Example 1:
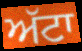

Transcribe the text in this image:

ਅੱਟਾ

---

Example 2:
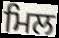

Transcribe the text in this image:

ਮਿਲ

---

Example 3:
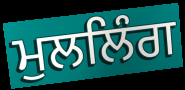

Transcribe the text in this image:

ਮੁਲਲਿੰਗ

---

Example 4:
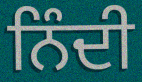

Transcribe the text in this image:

ਨਿੰਦੀ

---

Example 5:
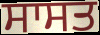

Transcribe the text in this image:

ਸਾਸਤ